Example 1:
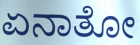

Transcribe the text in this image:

ಏನಾತೋ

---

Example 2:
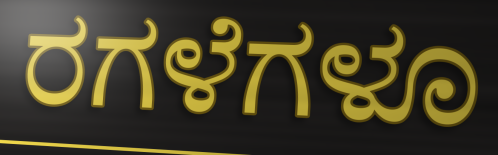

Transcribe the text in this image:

ರಗಳೆಗಳೂ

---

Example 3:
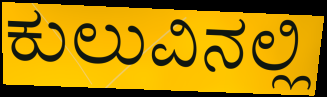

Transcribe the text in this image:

ಕುಲುವಿನಲ್ಲಿ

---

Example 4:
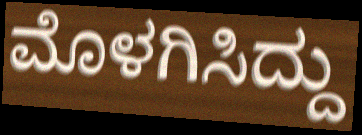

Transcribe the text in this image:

ಮೊಳಗಿಸಿದ್ದು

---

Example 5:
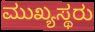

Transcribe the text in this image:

ಮುಖ್ಯಸ್ಥರು